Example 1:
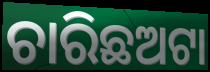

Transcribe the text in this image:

ଚାରିଛଅଟା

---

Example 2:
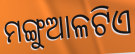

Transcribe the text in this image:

ମଙ୍ଗୁଆଳଟିଏ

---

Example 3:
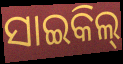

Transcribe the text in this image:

ସାଇକିଲ୍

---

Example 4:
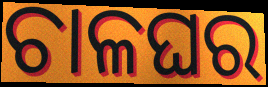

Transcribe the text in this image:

ଚାଳଘର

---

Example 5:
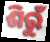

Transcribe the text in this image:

ଶିରୁଁ